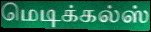
மெடிக்கல்ஸ்